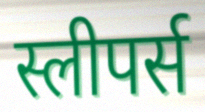
स्लीपर्स